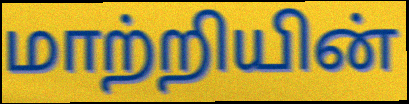
மாற்றியின்